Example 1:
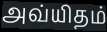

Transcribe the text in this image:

அவ்யிதம்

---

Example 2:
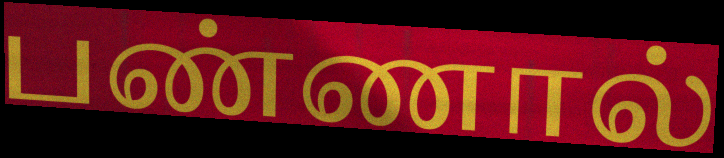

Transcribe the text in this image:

பண்ணால்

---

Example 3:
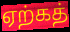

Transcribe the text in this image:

ஏற்கத்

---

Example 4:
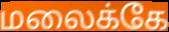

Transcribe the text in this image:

மலைக்கே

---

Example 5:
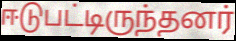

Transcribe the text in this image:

ஈடுபட்டிருந்தனர்